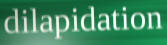
dilapidation